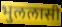
भुललासी